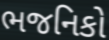
ભજનિકો